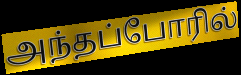
அந்தப்போரில்